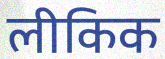
लीकिक